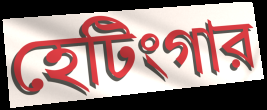
হেটিংগার